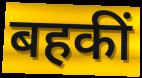
बहकीं